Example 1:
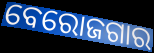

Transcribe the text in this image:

ବେରୋଜଗାର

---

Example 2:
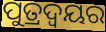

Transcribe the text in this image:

ପୁତ୍ରଦ୍ୱୟର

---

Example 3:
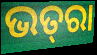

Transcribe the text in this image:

ଭତ୍‌ରା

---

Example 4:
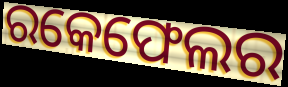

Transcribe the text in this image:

ରକେଫେଲର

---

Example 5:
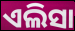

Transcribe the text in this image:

ଏଲିସା